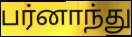
பர்னாந்து